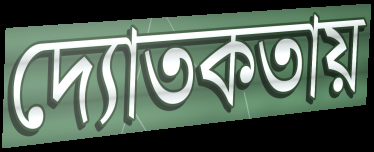
দ্যোতকতায়